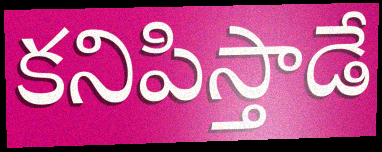
కనిపిస్తాడే